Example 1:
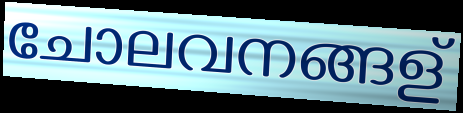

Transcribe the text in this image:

ചോലവനങ്ങള്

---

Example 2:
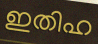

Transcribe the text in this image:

ഇതിഹ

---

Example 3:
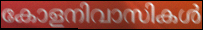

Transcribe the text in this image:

കോളനിവാസികൾ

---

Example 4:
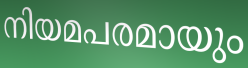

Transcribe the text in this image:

നിയമപരമായും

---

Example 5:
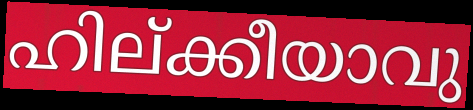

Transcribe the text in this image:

ഹില്ക്കീയാവു